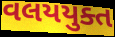
વલયયુક્ત